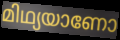
മിഥ്യയാണോ